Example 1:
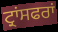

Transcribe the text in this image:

ਟ੍ਰਾਂਸਫਰਾਂ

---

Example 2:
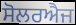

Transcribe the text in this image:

ਸੋਲਰਐਜ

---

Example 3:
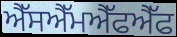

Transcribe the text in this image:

ਐੱਸਐੱਮਐੱਫਐੱਫ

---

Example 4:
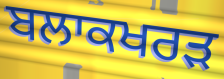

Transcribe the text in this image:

ਬਲਾਕਖਰੜ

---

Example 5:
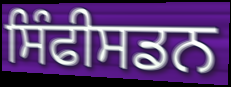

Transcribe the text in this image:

ਸਿੰਫੀਸਡਨ